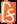
કિ